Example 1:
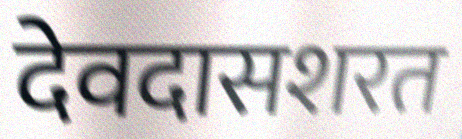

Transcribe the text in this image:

देवदासशरत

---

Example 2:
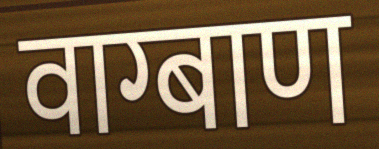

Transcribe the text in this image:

वाग्बाण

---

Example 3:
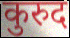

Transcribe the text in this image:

कुरुद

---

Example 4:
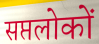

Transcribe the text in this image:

सप्तलोकों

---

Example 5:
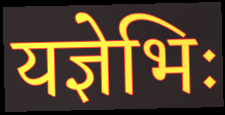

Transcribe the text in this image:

यज्ञेभिः